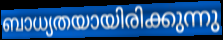
ബാധ്യതയായിരിക്കുന്നു